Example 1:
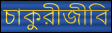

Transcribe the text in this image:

চাকুরীজীবি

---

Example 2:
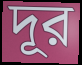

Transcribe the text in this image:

দূর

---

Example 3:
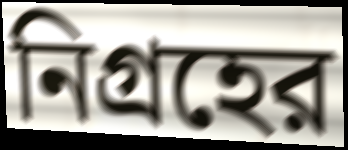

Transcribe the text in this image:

নিগ্রহের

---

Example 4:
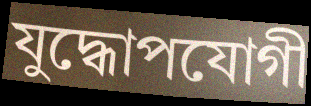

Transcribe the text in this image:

যুদ্ধোপযোগী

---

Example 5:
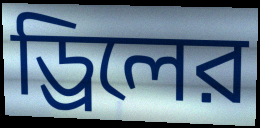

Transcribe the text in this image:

ড্রিলের